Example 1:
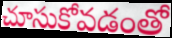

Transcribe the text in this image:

చూసుకోవడంతో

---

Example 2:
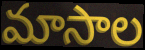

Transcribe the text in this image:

మాసాల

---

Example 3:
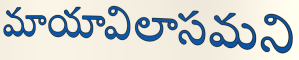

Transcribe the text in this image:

మాయావిలాసమని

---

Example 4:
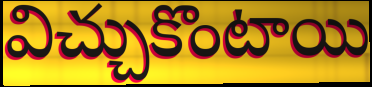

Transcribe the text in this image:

విచ్చుకొంటాయి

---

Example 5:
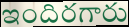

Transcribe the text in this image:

ఇందిరగారు